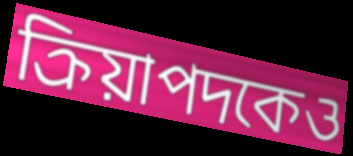
ক্রিয়াপদকেও